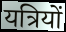
यत्रियों